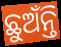
ଛୁଅଁନ୍ତି